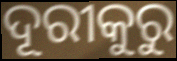
ଦୂରୀକୁରୁ